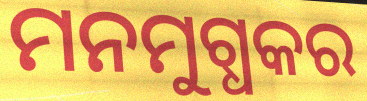
ମନମୁଗ୍ଧକର